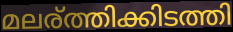
മലര്ത്തിക്കിടത്തി